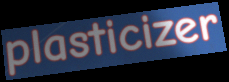
plasticizer